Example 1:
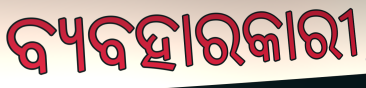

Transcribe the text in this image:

ବ୍ୟବହାରକାରୀ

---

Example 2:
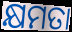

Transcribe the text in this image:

କ୍ଷମତା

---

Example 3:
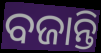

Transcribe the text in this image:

ବଜାନ୍ତି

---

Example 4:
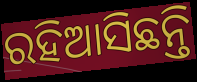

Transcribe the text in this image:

ରହିଆସିଛନ୍ତି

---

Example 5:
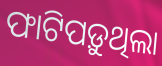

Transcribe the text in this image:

ଫାଟିପଡ଼ୁଥିଲା